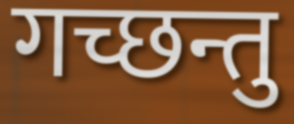
गच्छन्तु